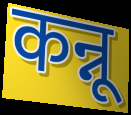
कन्नू